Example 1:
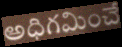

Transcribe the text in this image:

అధిగమించే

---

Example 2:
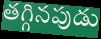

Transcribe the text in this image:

తగ్గినపుడు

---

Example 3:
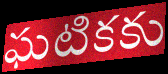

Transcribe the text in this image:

ఘటికకు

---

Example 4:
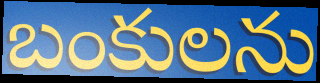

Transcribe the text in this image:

బంకులను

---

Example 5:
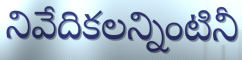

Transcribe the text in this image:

నివేదికలన్నింటినీ